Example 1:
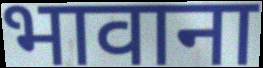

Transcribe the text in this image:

भावाना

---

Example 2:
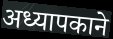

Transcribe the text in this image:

अध्यापकाने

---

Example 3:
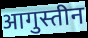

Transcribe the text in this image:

आगुस्तीन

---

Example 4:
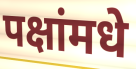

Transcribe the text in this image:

पक्षांमधे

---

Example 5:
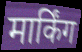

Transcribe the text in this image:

मार्किंग